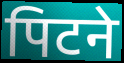
पिटने